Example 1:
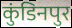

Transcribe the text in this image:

कुंडिनपुर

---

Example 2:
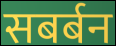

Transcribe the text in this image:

सबर्बन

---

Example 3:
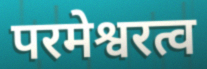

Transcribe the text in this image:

परमेश्वरत्व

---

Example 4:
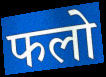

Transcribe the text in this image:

फलो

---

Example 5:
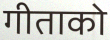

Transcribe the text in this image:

गीताको